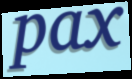
pax